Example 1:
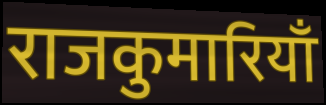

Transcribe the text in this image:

राजकुमारियाँ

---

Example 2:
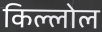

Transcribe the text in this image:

किल्लोल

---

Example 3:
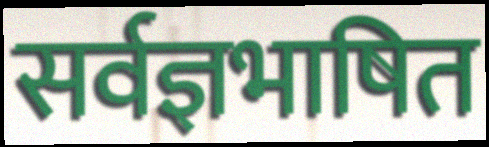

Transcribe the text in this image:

सर्वज्ञभाषित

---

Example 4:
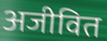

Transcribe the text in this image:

अजीवित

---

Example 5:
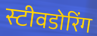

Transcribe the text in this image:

स्टीवडोरिंग